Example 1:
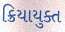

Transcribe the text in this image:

ક્રિયાયુક્ત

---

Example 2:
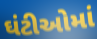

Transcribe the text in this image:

ઘંટીઓમાં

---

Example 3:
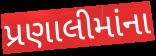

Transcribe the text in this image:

પ્રણાલીમાંના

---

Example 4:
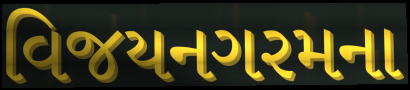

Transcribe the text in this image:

વિજયનગરમના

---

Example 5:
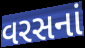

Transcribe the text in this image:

વરસનાં